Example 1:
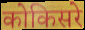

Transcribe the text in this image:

कोकिसरे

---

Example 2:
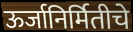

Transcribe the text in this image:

ऊर्जानिर्मितीचे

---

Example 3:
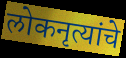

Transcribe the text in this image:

लोकनृत्यांचे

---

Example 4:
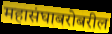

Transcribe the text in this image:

महासंघाबरोबरील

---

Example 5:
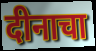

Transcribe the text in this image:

दीनाचा